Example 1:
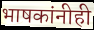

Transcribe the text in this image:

भाषकांनीही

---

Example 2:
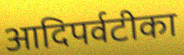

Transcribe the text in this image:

आदिपर्वटीका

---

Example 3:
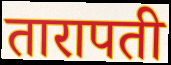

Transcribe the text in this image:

तारापती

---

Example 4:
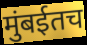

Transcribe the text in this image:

मुंबईतच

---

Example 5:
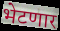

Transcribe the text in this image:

भेटणार